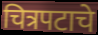
चित्रपटाचे